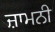
ਜ਼ਾਮਨੀ